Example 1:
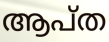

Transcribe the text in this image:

ആപ്ത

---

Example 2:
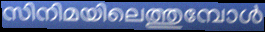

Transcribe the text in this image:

സിനിമയിലെത്തുമ്പോൾ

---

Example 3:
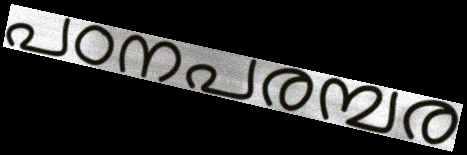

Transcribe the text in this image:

പഠനപരമ്പര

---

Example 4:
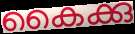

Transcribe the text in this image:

കൈക്കു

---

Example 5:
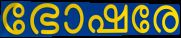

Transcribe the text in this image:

ഭോഷരേ